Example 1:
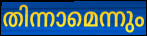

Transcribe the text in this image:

തിന്നാമെന്നും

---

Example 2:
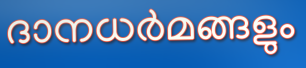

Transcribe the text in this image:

ദാനധർമങ്ങളും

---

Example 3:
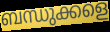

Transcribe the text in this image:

ബന്ധുക്കളെ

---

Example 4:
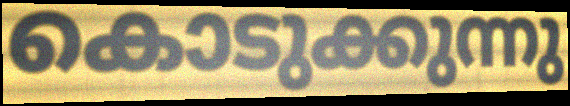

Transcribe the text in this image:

കൊടുക്കുന്നു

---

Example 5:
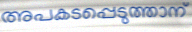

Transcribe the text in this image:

അപകടപ്പെടുത്താന്